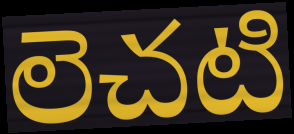
లెచటి